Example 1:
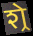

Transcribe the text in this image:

श्रे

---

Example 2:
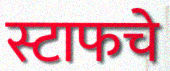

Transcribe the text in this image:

स्टाफचे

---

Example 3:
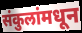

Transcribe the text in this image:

संकुलांमधून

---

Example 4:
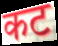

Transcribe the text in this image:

कट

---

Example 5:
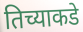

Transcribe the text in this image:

तिच्याकडे